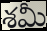
శమీ